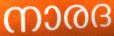
നാരദ